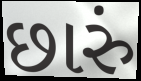
છારું